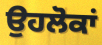
ਉਹਲੋਕਾਂ